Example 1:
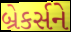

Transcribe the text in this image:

બ્રેકર્સને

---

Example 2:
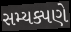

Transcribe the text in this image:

સમ્યક્પણે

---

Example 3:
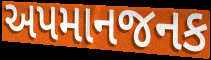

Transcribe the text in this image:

અપમાનજનક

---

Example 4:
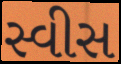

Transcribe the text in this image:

સ્વીસ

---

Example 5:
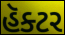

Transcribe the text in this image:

હૅક્ટર